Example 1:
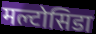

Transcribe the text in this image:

मल्टोसिडा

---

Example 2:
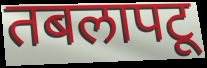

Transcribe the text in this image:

तबलापटू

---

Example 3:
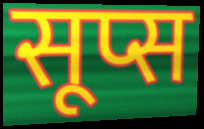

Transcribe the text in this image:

सूप्स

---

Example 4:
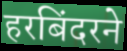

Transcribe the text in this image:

हरबिंदरने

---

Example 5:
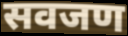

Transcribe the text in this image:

सवजण